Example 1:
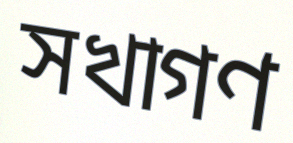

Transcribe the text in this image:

সখাগণ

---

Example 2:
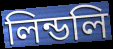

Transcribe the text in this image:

লিন্ডলি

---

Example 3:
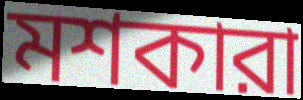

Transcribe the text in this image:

মশকারা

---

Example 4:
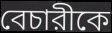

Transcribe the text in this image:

বেচারীকে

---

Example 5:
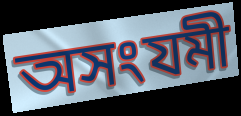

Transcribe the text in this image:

অসংযমী